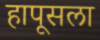
हापूसला